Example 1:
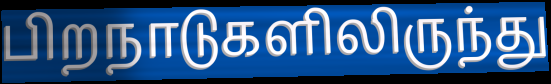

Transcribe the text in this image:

பிறநாடுகளிலிருந்து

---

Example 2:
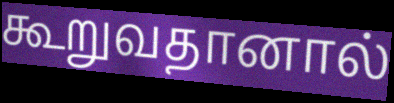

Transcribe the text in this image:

கூறுவதானால்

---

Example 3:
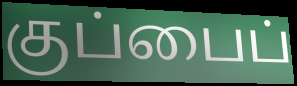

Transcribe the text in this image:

குப்பைப்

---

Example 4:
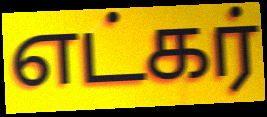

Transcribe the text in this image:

எட்கர்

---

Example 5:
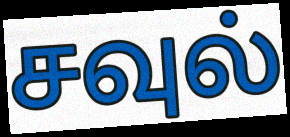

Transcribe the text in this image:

சவுல்